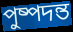
পুষ্পদন্ত